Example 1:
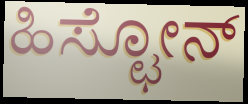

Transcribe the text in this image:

ಹಿಸ್ಟೋನ್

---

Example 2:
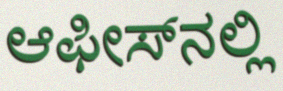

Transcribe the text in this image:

ಆಫೀಸ್‌ನಲ್ಲಿ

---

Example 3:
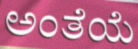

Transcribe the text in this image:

ಅಂತೆಯೆ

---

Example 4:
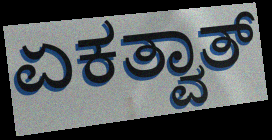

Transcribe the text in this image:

ಏಕತ್ವಾತ್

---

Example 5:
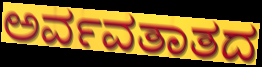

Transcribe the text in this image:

ಅರ್ವವತಾತದ